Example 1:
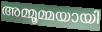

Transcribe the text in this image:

അമ്മൂമ്മയായി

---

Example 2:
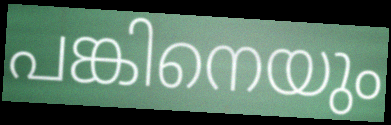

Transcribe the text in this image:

പങ്കിനെയും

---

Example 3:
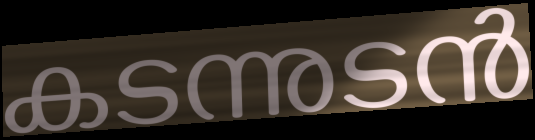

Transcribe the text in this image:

കടന്നുടൻ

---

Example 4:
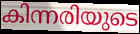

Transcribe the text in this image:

കിന്നരിയുടെ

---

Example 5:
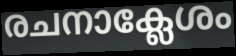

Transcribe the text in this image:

രചനാക്ലേശം